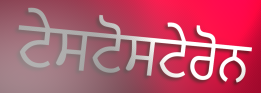
ਟੇਸਟੋਸਟੇਰੋਨ